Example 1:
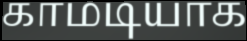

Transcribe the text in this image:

காமடியாக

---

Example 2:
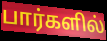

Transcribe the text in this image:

பார்களில்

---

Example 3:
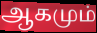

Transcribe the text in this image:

ஆகமும்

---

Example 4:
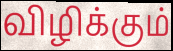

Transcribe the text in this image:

விழிக்கும்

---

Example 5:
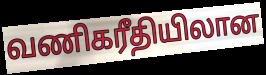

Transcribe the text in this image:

வணிகரீதியிலான